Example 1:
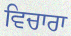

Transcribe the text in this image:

ਵਿਚਾਰਾ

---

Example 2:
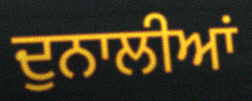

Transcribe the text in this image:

ਦੁਨਾਲੀਆਂ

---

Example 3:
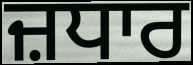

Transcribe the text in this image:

ਜ਼ਧਾਰ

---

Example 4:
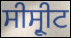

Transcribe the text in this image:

ਸੀਸ੍ਟ੍ਰੀਟ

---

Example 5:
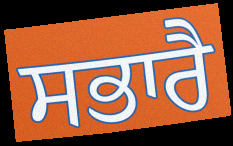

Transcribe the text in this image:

ਸਭਾਰੈ